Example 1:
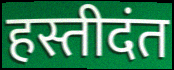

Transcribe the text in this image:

हस्तीदंत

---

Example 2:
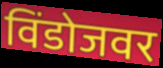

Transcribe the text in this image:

विंडोजवर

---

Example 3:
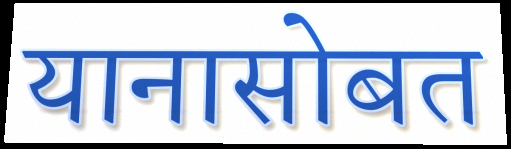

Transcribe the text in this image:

यानासोबत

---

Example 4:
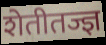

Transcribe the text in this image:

शेतीतज्ज्ञ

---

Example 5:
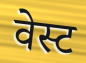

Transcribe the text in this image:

वेस्ट